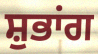
ਸ਼ੁਭਾਂਗ